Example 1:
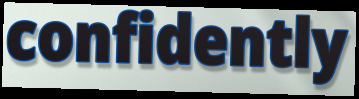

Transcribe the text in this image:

confidently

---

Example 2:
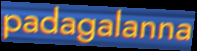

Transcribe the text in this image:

padagalanna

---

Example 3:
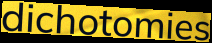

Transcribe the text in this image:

dichotomies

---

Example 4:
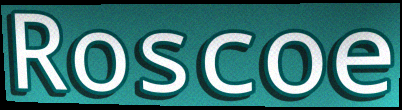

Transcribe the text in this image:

Roscoe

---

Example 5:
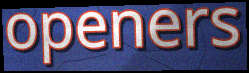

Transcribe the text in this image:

openers